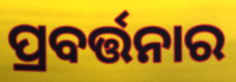
ପ୍ରବର୍ତ୍ତନାର